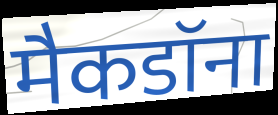
मैकडॉना